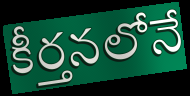
కీర్తనలోనే